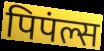
पिपंल्स